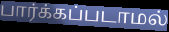
பார்க்கப்படாமல்